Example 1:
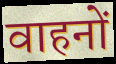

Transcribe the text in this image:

वाहनों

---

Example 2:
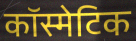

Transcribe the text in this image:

कॉस्मेटिक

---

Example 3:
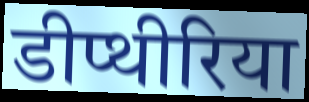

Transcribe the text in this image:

डीप्थीरिया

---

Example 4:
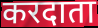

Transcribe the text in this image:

करदाता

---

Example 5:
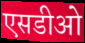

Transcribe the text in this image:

एसडीओ